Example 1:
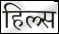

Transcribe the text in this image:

हिल्स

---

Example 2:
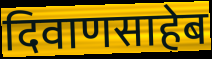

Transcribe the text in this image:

दिवाणसाहेब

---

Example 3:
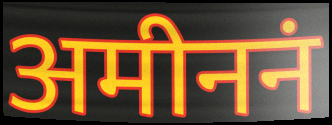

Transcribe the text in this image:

अमीननं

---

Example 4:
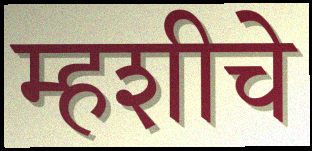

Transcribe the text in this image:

म्हशीचे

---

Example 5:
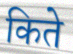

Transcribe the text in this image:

किते